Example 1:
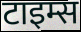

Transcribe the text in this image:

टाइम्स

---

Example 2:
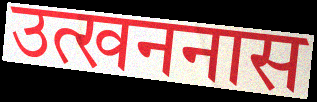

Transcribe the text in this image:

उत्खननास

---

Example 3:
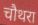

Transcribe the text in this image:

चौथरा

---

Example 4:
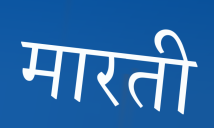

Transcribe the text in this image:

मारती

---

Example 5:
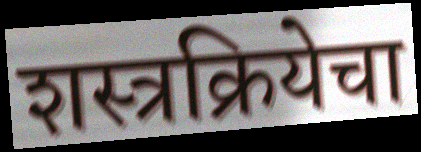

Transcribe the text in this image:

शस्त्रक्रियेचा